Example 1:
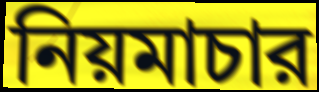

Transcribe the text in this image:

নিয়মাচার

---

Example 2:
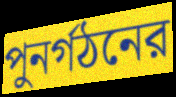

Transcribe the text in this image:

পুনর্গঠনের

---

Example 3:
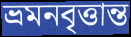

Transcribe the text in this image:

ভ্রমনবৃত্তান্ত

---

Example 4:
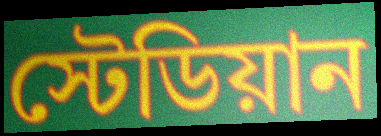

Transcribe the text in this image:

স্টেডিয়ান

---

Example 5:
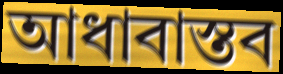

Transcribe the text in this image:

আধাবাস্তব